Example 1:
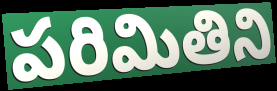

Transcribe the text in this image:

పరిమితిని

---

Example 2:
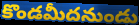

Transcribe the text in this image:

కొండమీదనుండు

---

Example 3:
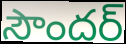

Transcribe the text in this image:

సౌందర్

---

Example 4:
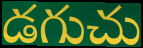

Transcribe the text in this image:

డగుచు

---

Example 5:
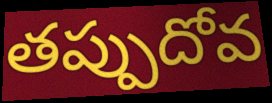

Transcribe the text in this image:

తప్పుదోవ